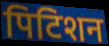
पिटिशन